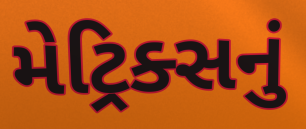
મેટ્રિક્સનું